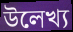
উলেখ্য